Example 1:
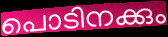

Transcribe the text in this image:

പൊടിനക്കും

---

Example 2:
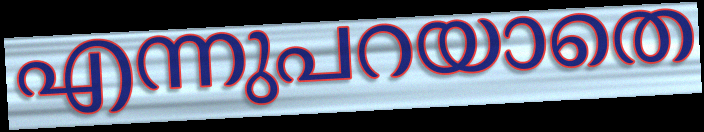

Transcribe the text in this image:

എന്നുപറയാതെ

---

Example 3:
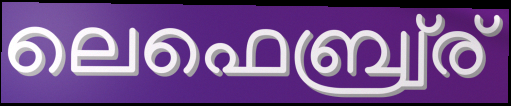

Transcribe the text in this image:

ലെഫെബ്ര്വ്ര്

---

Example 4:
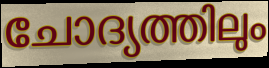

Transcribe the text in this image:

ചോദ്യത്തിലും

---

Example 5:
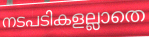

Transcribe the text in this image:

നടപടികളല്ലാതെ